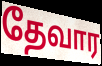
தேவார